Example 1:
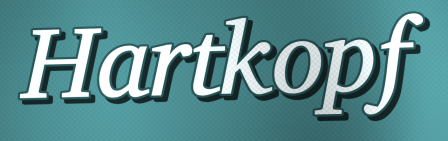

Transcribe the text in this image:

Hartkopf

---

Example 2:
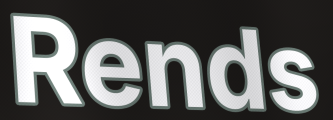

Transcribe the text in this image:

Rends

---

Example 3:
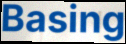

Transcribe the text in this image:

Basing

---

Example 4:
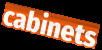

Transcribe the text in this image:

cabinets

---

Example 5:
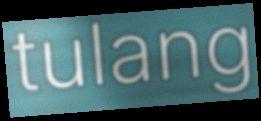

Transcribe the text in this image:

tulang